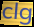
clg